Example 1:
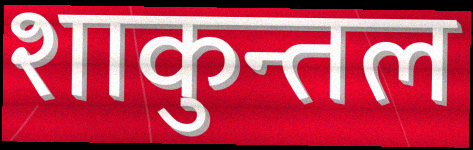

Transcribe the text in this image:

शाकुन्तल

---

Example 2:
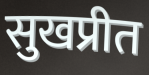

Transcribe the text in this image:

सुखप्रीत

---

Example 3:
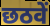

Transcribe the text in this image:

छठवें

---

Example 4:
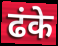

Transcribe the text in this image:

ढंके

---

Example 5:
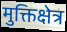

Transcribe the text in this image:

मुक्तिक्षेत्र